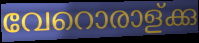
വേറൊരാള്ക്കു